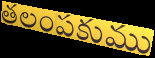
తలంపకుము